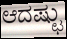
ಆದಷ್ಟು